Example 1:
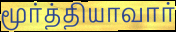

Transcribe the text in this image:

மூர்த்தியாவார்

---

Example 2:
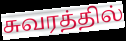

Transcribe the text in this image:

சுவரத்தில்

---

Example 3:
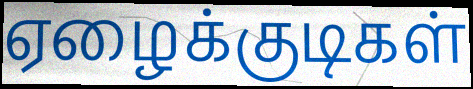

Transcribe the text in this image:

ஏழைக்குடிகள்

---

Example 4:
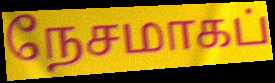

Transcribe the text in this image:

நேசமாகப்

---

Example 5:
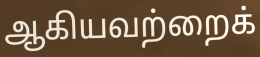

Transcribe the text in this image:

ஆகியவற்றைக்